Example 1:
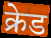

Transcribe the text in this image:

क्रेड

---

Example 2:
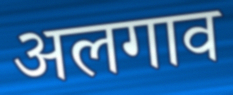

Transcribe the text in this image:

अलगाव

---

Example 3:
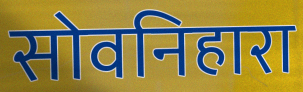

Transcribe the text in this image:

सोवनिहारा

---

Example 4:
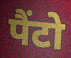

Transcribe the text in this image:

पैंटो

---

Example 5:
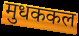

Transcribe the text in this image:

मुधककल